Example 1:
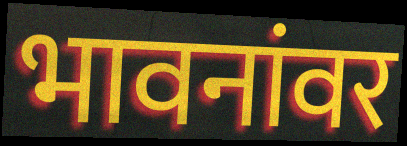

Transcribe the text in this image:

भावनांवर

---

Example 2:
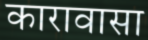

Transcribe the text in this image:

कारावासा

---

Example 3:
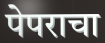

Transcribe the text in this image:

पेपराचा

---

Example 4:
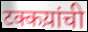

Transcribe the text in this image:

टक्कय़ांची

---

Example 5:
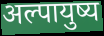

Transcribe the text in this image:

अल्पायुष्य